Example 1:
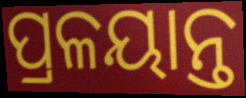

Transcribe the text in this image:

ପ୍ରଳୟାନ୍ତ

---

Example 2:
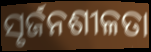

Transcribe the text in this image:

ସୃର୍ଜନଶୀଳତା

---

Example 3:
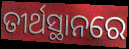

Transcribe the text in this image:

ତୀର୍ଥସ୍ଥାନରେ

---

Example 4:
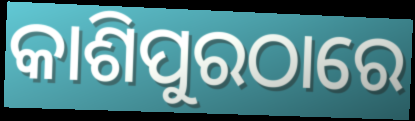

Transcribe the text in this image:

କାଶିପୁରଠାରେ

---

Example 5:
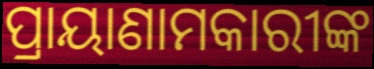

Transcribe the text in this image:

ପ୍ରାୟାଣାମକାରୀଙ୍କ